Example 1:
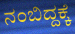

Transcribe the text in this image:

ನಂಬಿದ್ದಕ್ಕೆ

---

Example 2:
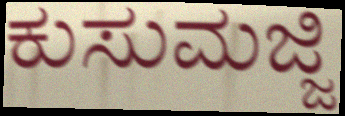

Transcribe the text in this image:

ಕುಸುಮಜ್ಜಿ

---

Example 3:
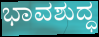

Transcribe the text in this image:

ಭಾವಶುದ್ಧ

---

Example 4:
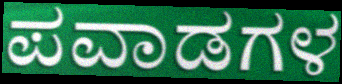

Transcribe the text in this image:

ಪವಾಡಗಳ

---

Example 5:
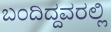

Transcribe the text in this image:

ಬಂದಿದ್ದವರಲ್ಲಿ